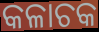
କଳାଚକ